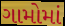
ગામોમાં